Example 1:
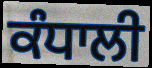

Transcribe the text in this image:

ਕੰਧਾਲੀ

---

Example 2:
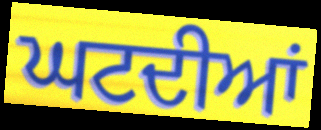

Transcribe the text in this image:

ਘਟਦੀਆਂ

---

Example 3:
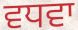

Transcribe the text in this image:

ਵਧਵਾ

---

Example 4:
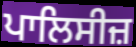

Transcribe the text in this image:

ਪਾਲਿਸੀਜ਼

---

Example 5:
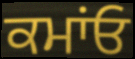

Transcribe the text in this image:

ਕਮਾਂਓ